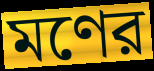
মণের